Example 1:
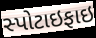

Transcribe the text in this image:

સ્પોટાઇફાઇ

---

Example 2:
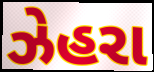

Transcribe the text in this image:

ઝેહરા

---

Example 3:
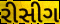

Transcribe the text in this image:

રીસીગ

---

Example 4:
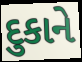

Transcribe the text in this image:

દુકાને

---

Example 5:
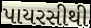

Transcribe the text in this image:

પાયરસીથી